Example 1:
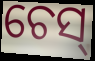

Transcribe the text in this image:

ଚେସ୍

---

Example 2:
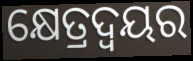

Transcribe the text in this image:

କ୍ଷେତ୍ରଦ୍ୱୟର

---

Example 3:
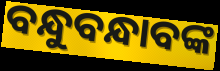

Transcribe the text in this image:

ବନ୍ଧୁବନ୍ଧାବଙ୍କ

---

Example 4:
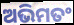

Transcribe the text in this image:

ଅଭିମତଂ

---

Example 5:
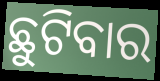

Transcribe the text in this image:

ଛୁଟିବାର